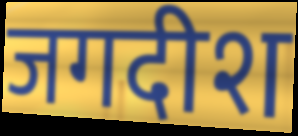
जगदीश